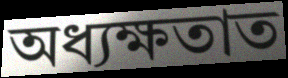
অধ্যক্ষতাত